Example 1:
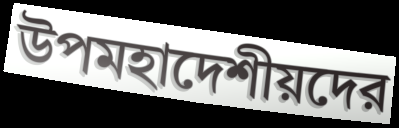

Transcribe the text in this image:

উপমহাদেশীয়দের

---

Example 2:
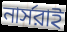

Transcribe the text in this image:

নার্সরাই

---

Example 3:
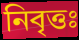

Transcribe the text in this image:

নিবৃত্তঃ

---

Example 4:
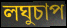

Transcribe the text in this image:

লঘুচাপ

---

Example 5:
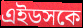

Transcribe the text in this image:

এইডসকে